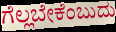
ಗೆಲ್ಲಬೇಕೆಂಬುದು